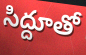
సిద్దూతో